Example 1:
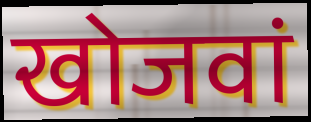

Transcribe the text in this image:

खोजवां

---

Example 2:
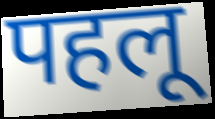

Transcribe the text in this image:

पहलू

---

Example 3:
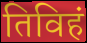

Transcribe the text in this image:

तिविहं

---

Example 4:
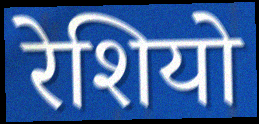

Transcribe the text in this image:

रेशियो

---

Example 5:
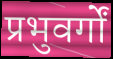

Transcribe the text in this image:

प्रभुवर्गों